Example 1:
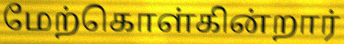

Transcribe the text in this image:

மேற்கொள்கின்றார்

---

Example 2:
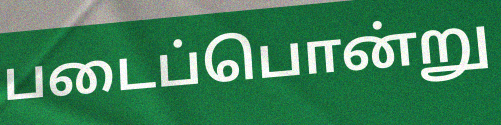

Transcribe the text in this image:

படைப்பொன்று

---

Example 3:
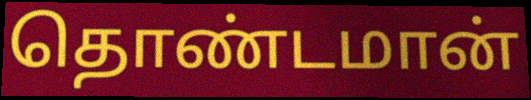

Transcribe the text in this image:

தொண்டமான்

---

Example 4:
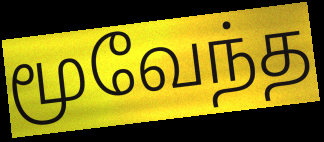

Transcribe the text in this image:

மூவேந்த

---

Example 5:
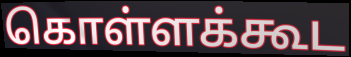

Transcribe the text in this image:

கொள்ளக்கூட